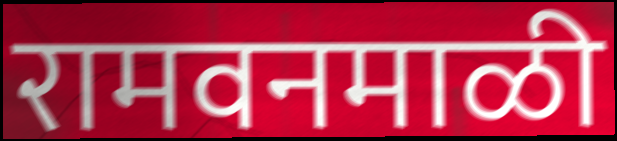
रामवनमाळी